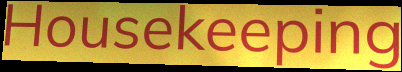
Housekeeping